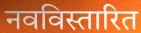
नवविस्तारित